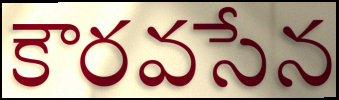
కౌరవసేన